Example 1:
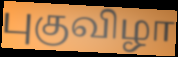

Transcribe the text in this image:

புகுவிழா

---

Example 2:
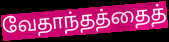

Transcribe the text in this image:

வேதாந்தத்தைத்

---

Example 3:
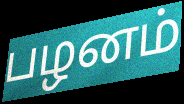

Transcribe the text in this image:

பழனம்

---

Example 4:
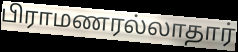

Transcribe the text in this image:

பிராமணரல்லாதார்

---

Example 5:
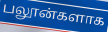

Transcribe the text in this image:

பலூன்களாக